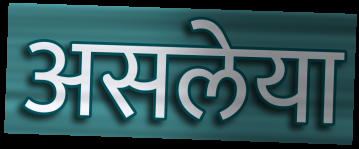
असलेया